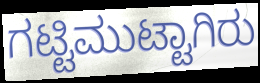
ಗಟ್ಟಿಮುಟ್ಟಾಗಿರು